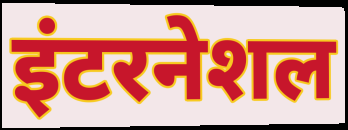
इंटरनेशल